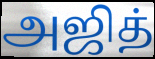
அஜித்